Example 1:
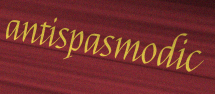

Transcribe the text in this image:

antispasmodic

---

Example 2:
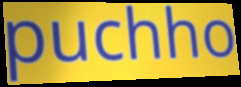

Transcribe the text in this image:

puchho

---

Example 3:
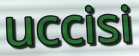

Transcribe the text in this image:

uccisi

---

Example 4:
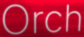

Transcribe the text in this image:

Orch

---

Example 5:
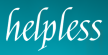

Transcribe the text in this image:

helpless